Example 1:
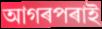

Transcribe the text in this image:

আগৰপৰাই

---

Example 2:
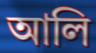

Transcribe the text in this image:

আলি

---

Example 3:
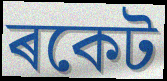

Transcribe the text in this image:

ৰকেট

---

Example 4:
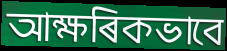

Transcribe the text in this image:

আক্ষৰিকভাবে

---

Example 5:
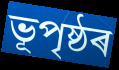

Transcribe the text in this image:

ভূপৃষ্ঠৰ